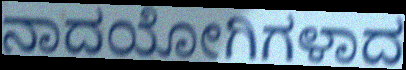
ನಾದಯೋಗಿಗಳಾದ